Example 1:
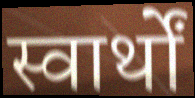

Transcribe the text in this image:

स्वार्थों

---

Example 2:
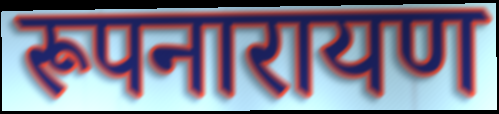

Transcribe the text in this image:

रूपनारायण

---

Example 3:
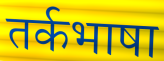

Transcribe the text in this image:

तर्कभाषा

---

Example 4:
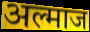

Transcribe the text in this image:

अल्माज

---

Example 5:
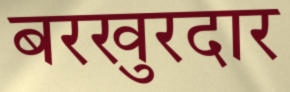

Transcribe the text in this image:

बरखुरदार